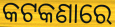
କଟକଣାରେ